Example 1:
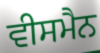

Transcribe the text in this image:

ਵੀਸਮੈਨ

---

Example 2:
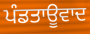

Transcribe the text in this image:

ਪੰਡਤਾਊਵਾਦ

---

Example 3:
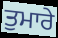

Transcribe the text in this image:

ਤੁਮਾਰੇ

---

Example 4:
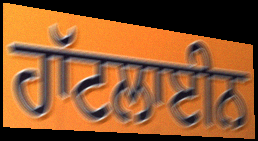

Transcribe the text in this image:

ਹਾੱਟਲਾਈਨ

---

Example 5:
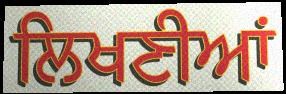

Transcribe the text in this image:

ਲਿਖਣੀਆਂ